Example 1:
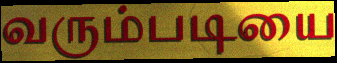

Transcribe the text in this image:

வரும்படியை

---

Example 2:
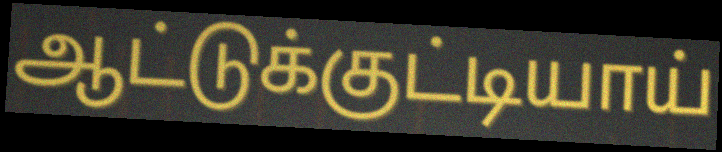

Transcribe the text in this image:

ஆட்டுக்குட்டியாய்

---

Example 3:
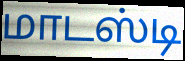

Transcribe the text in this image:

மாடஸ்டி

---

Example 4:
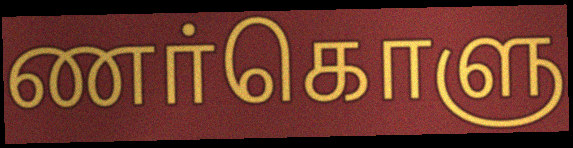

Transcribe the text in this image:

ணர்கொளு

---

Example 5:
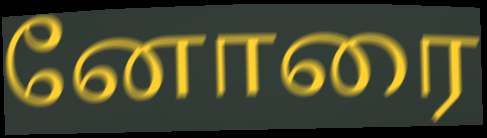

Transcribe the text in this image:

னோரை